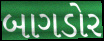
બાગડોર